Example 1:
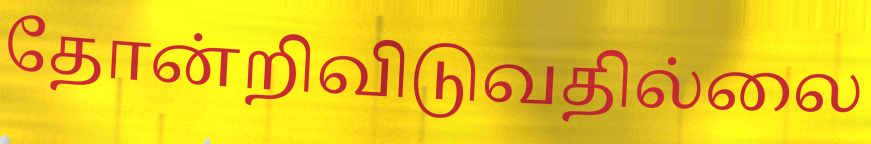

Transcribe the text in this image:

தோன்றிவிடுவதில்லை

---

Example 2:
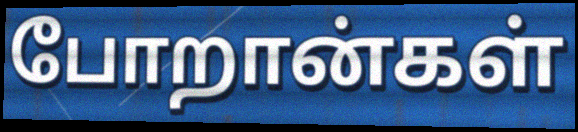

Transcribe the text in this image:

போறான்கள்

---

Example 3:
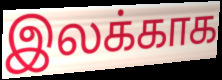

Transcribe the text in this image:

இலக்காக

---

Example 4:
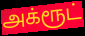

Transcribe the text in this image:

அக்ரூட்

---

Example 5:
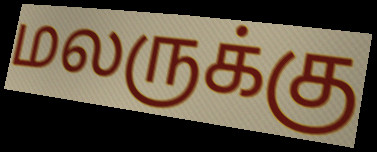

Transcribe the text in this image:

மலருக்கு